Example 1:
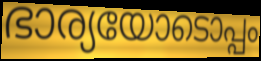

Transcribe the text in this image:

ഭാര്യയോടൊപ്പം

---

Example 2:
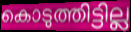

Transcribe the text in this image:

കൊടുത്തിട്ടില്ല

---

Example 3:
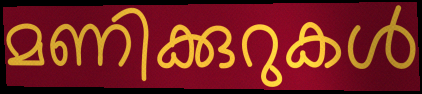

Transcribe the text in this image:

മണിക്കുറുകൾ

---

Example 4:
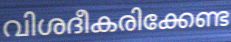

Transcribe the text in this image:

വിശദീകരിക്കേണ്ട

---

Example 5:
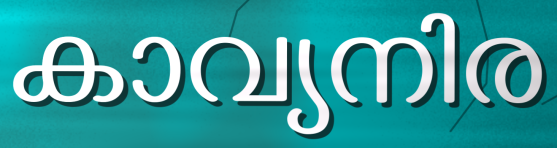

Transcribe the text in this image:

കാവ്യനിര